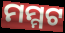
ମମ୍ମଟ